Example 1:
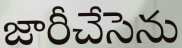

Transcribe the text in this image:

జారీచేసెను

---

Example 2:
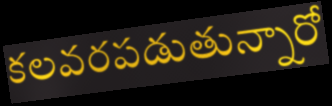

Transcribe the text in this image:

కలవరపడుతున్నారో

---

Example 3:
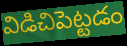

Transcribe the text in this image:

విడిచిపెట్టడం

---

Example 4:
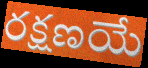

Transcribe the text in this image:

రక్షణయే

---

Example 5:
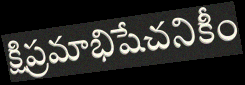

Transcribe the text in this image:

క్షిప్రమాభిషేచనికీం